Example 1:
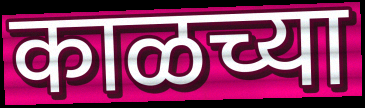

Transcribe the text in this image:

काळच्या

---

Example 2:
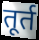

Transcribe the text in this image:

तूर्त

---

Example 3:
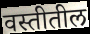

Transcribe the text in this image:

वस्तीतील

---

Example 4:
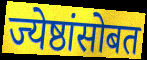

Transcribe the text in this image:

ज्येष्ठांसोबत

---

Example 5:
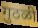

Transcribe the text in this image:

गुठळी